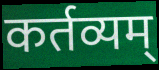
कर्तव्यम्